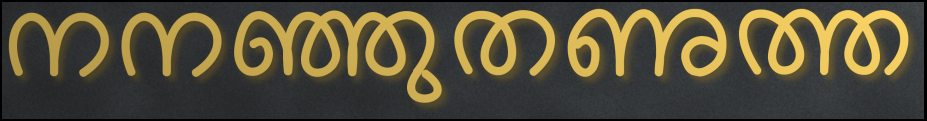
നനഞ്ഞുതണുത്ത